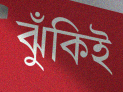
ঝুঁকিই